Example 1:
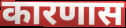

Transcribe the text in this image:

कारणास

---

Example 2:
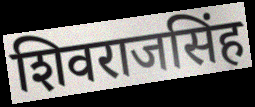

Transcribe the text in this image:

शिवराजसिंह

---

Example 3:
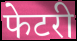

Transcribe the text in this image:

फेटरी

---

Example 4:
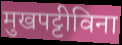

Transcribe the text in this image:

मुखपट्टीविना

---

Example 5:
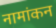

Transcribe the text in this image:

नामांकन